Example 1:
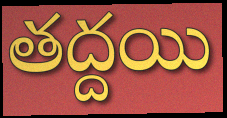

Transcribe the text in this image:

తద్దయి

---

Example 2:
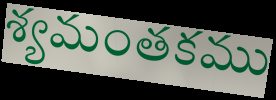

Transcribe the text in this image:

శ్యమంతకము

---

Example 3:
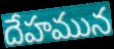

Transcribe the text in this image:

దేహమున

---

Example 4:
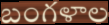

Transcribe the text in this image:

బంగళాల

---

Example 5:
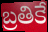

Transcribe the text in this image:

బ్రతికే